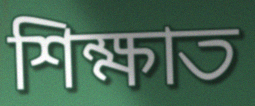
শিক্ষাত